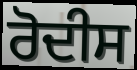
ਰੋਦੀਸ